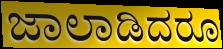
ಜಾಲಾಡಿದರೂ